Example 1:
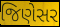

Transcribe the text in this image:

જિણેસર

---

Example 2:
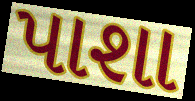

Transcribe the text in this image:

પાશા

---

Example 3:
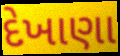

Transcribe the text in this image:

દેખાણા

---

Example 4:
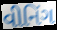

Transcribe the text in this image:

વીનિંગ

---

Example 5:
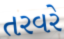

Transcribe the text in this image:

તરવરે